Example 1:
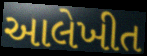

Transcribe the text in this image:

આલેખીત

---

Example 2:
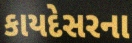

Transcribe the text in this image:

કાયદેસરના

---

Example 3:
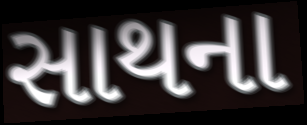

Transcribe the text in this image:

સાથના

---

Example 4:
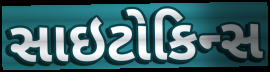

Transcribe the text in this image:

સાઇટોકિન્સ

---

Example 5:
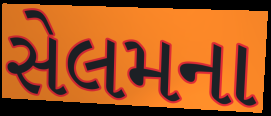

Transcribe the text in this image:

સેલમના